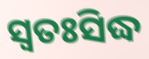
ସ୍ବତଃସିଦ୍ଧ